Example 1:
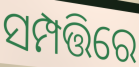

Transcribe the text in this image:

ସମ୍ପତ୍ତିରେ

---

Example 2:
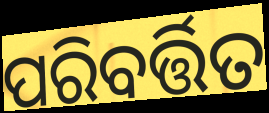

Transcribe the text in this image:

ପରିବର୍ତ୍ତିତ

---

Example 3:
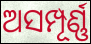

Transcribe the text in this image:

ଅସମ୍ପୂର୍ଣ୍ଣ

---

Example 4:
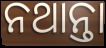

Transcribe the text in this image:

ନଥାନ୍ତା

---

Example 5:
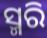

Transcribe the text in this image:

ସ୍ମରି